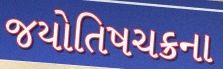
જયોતિષચક્રના